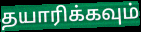
தயாரிக்கவும்